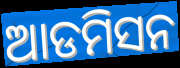
ଆଡମିସନ